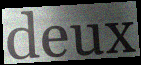
deux